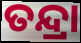
ତନ୍ଦ୍ରା